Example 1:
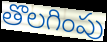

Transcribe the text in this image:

తొలగింపు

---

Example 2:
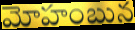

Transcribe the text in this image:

మోహంబున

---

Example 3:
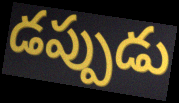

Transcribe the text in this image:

డప్పుడు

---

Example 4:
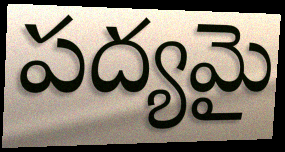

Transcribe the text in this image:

పద్యమై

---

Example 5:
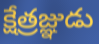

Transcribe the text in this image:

క్షేత్రజ్ఞుడు